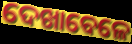
ଦେଖାବେଳେ